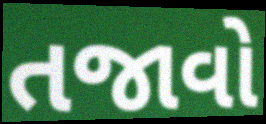
તજાવો